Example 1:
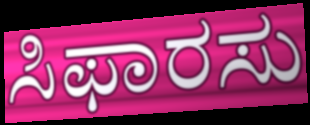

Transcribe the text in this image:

ಸಿಫಾರಸು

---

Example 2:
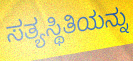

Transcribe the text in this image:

ಸತ್ಯಸ್ಥಿತಿಯನ್ನು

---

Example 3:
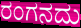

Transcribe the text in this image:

ರಂಗನದು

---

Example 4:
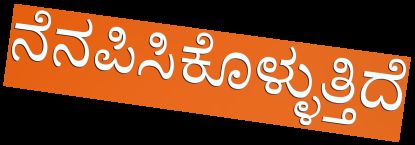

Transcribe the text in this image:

ನೆನಪಿಸಿಕೊಳ್ಳುತ್ತಿದೆ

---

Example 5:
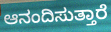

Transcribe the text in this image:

ಆನಂದಿಸುತ್ತಾರೆ